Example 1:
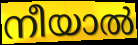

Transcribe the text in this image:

നീയാൽ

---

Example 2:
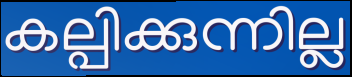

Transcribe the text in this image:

കല്പിക്കുന്നില്ല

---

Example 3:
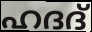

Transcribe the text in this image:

ഹദദ്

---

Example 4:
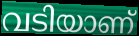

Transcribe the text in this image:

വടിയാണ്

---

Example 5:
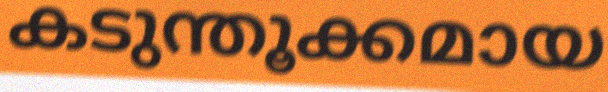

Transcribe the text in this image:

കടുന്തൂക്കമായ